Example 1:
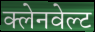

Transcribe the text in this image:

क्लेनवेल्ट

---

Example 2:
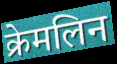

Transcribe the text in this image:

क्रेमलिन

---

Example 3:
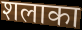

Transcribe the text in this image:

शलाका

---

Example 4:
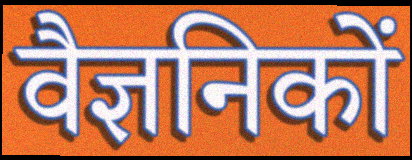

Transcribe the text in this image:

वैज्ञनिकों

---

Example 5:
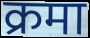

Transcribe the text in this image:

क्रमा